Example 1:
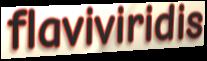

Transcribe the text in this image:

flaviviridis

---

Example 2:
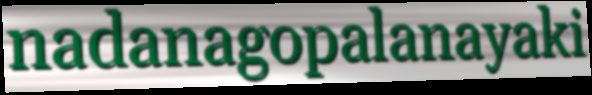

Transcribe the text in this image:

nadanagopalanayaki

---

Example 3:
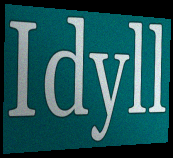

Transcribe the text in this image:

Idyll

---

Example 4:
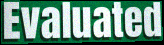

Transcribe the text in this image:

Evaluated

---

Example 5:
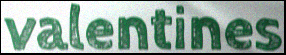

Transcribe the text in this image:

valentines